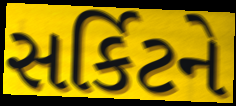
સર્કિટને